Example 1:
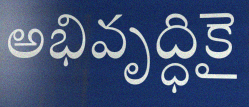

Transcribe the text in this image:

అభివృద్ధికై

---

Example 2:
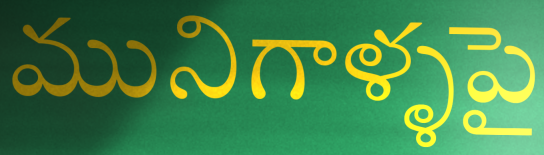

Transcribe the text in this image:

మునిగాళ్ళపై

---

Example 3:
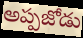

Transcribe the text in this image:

అప్పజోడు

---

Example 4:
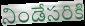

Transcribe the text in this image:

నిండేసరికి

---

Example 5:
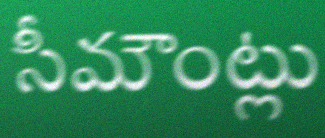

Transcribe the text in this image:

సీమౌంట్లు